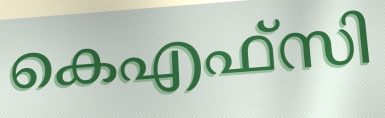
കെഎഫ്സി